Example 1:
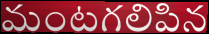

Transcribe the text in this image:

మంటగలిపిన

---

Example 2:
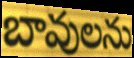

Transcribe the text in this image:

బావులను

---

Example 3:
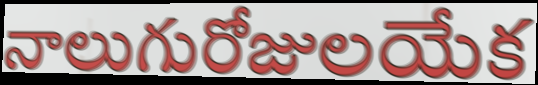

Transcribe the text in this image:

నాలుగురోజులయేక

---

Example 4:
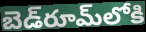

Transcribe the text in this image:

బెడ్‌రూమ్‌లోకి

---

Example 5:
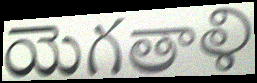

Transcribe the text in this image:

యెగతాళి